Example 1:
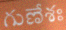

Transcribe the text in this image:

గుణేశః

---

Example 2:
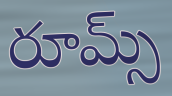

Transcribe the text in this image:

రూమ్స్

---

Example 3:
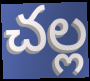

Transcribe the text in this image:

చల్ల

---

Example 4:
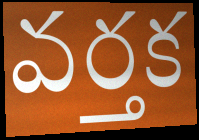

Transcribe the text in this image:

వర్తక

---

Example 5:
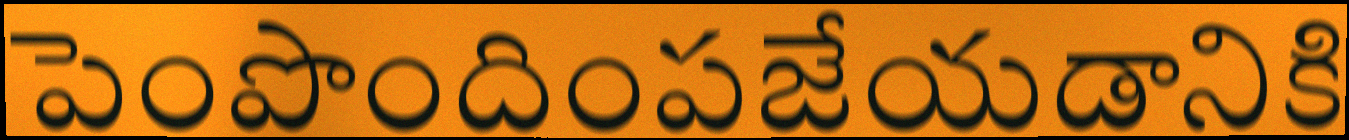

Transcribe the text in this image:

పెంపొందింపజేయడానికి